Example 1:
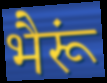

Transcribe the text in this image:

भैरूं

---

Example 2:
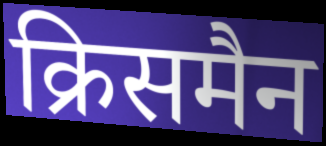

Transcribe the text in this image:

क्रिसमैन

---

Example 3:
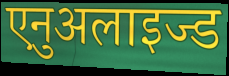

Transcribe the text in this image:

एनुअलाइज्ड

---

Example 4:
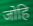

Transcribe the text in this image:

जोहि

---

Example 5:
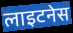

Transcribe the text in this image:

लाइटनेस